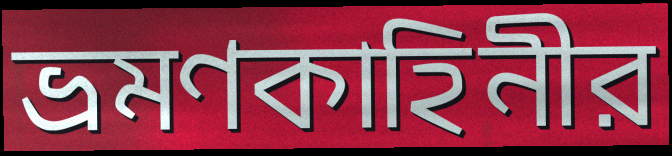
ভ্রমণকাহিনীর